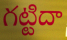
గట్టిదా